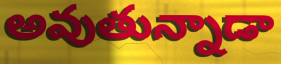
అవుతున్నాడా